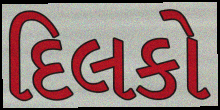
દિલકો